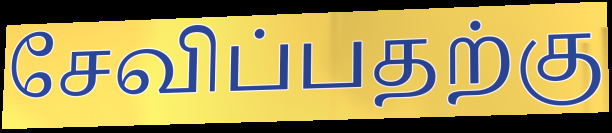
சேவிப்பதற்கு